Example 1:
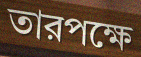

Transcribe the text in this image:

তারপক্ষে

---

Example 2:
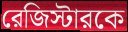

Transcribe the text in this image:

রেজিস্টারকে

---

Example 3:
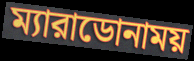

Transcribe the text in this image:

ম্যারাডোনাময়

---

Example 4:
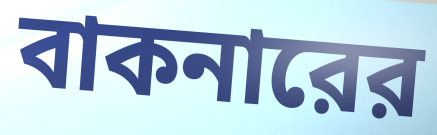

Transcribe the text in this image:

বাকনারের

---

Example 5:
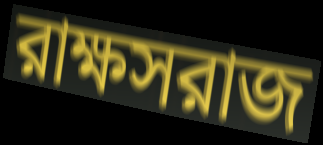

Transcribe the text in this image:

রাক্ষসরাজ